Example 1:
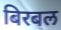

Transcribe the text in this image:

बिरबल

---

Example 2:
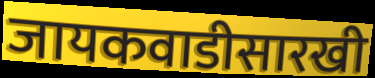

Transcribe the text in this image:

जायकवाडीसारखी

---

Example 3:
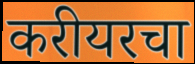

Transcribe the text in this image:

करीयरचा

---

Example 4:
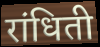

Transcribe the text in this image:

रांधिती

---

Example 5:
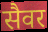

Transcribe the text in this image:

सैवर